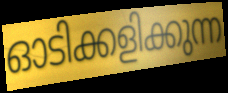
ഓടിക്കളിക്കുന്ന